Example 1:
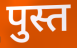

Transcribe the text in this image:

पुस्त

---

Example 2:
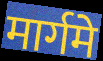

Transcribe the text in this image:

मार्गमे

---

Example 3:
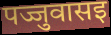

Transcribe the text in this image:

पज्जुवासइ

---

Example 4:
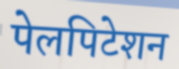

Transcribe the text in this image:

पेलपिटेशन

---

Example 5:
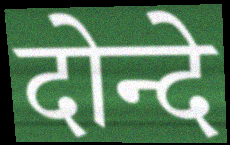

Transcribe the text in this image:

दोन्दे